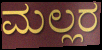
ಮಲ್ಲರ